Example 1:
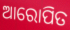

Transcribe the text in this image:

ଆରୋପିତ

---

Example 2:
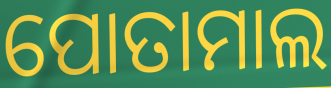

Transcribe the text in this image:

ପୋତାମାଲ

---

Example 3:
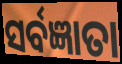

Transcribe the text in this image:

ସର୍ବଜ୍ଞାତା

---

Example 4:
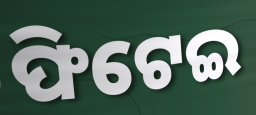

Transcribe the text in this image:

ଫିଟେଇ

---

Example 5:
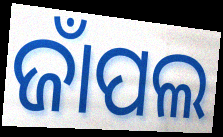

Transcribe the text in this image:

ଜାଁପଲ